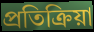
প্ৰতিক্ৰিয়া